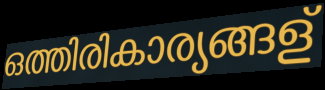
ഒത്തിരികാര്യങ്ങള്